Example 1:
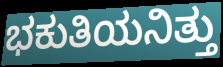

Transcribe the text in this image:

ಭಕುತಿಯನಿತ್ತು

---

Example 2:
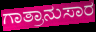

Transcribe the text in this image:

ಗಾತ್ರಾನುಸಾರ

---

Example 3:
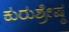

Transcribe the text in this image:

ಕುರುಶ್ರೇಷ್ಠ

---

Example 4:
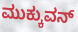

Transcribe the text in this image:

ಮುಕ್ಕುವನ್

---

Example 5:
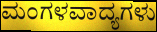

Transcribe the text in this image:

ಮಂಗಳವಾದ್ಯಗಳು